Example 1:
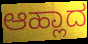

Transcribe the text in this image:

ಆಹ್ಲಾದ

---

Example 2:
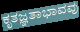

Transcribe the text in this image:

ಕೃತಜ್ಞತಾಭಾವವು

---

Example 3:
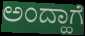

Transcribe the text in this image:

ಅಂದ್ಹಾಗೆ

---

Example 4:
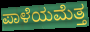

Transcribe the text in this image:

ಪಾಳೆಯಮೆತ್ತ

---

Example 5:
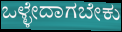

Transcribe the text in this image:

ಒಳ್ಳೇದಾಗಬೇಕು